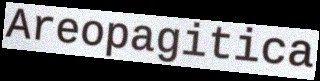
Areopagitica